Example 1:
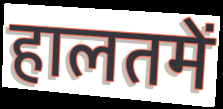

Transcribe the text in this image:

हालतमें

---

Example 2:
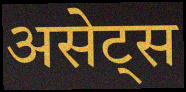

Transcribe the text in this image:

असेट्स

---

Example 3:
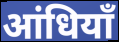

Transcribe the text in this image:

आंधियाँ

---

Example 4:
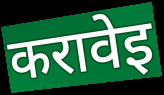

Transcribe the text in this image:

करावेइ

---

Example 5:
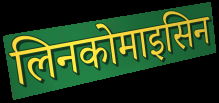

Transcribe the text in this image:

लिनकोमाइसिन